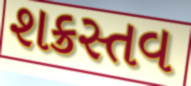
શક્રસ્તવ